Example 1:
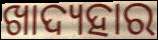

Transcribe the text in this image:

ଖାଦ୍ୟହାର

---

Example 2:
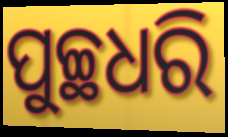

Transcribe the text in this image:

ପୁଚ୍ଛଧରି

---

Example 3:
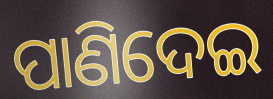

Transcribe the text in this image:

ପାଣିଦେଇ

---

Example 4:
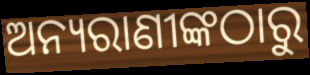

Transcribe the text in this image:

ଅନ୍ୟରାଣୀଙ୍କଠାରୁ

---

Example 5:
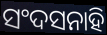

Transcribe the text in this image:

ସଂଦସନାହି